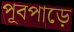
পূবপাড়ে